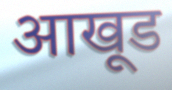
आखूड